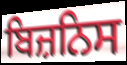
ਬਿਜ਼ਨਿਸ